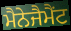
ਮੈਨੇਜੈਮੈਂਟ